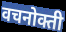
वचनोक्ती